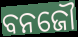
ବନଜୌ